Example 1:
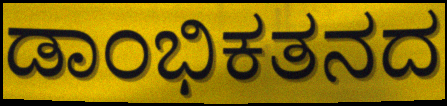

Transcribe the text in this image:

ಡಾಂಭಿಕತನದ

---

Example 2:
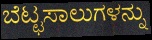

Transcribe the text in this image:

ಬೆಟ್ಟಸಾಲುಗಳನ್ನು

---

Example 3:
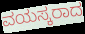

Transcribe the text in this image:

ವಯಸ್ಕರಾದ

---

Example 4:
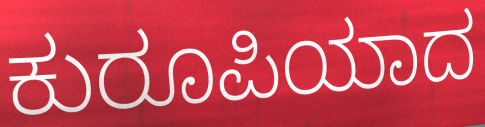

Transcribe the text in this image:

ಕುರೂಪಿಯಾದ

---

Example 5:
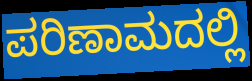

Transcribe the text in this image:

ಪರಿಣಾಮದಲ್ಲಿ